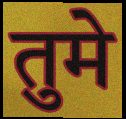
तुमे